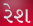
રેશ